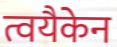
त्वयैकेन